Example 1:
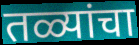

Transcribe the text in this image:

तळ्यांचा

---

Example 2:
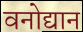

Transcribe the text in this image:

वनोद्यान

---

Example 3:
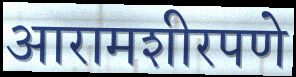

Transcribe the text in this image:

आरामशीरपणे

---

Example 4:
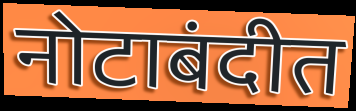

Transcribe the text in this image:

नोटाबंदीत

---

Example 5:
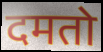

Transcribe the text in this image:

दमतो